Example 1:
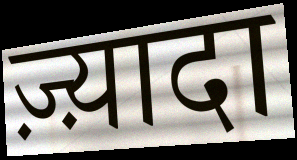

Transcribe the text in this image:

ज़्य़ादा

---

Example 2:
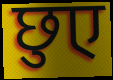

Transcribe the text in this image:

छुए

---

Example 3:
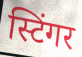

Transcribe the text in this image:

स्टिंगर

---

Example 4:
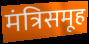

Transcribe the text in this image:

मंत्रिसमूह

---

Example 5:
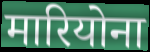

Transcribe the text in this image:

मारियोना